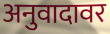
अनुवादावर